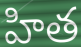
హిత